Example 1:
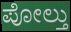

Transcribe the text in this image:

ಪೋಲ್ತು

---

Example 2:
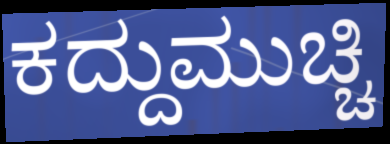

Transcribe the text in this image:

ಕದ್ದುಮುಚ್ಚಿ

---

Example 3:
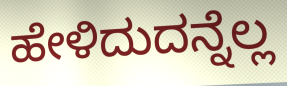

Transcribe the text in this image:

ಹೇಳಿದುದನ್ನೆಲ್ಲ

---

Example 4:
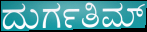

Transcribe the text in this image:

ದುರ್ಗತಿಮ್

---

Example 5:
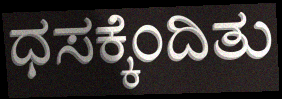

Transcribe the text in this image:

ಧಸಕ್ಕೆಂದಿತು